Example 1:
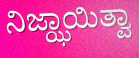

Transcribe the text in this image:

ನಿಜ್ಝಾಯಿತ್ವಾ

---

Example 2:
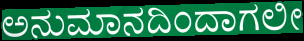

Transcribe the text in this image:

ಅನುಮಾನದಿಂದಾಗಲೀ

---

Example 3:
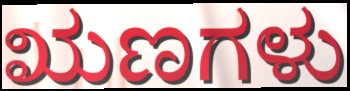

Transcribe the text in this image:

ಋಣಗಳು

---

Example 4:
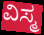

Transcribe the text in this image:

ವಿಸ್ಮ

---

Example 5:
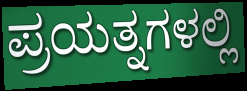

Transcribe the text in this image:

ಪ್ರಯತ್ನಗಳಲ್ಲಿ